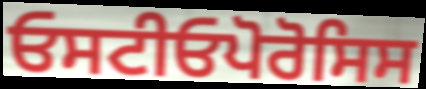
ਓਸਟੀਓਪੋਰੋਸਿਸ